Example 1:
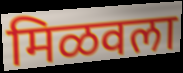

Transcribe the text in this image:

मिळवला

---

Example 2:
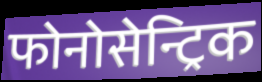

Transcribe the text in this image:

फोनोसेन्ट्रिक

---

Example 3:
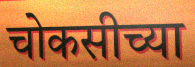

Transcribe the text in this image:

चोकसीच्या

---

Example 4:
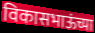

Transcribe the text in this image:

विकासभाऊंच्या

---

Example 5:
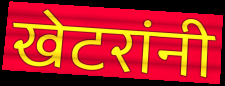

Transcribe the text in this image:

खेटरांनी